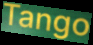
Tango